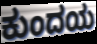
ಕುಂದಯ